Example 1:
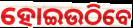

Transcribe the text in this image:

ହୋଇଉଠିବେ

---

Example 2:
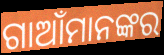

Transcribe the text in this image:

ଗାଆଁମାନଙ୍କର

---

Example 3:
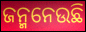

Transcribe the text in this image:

ଜନ୍ମନେଉଛି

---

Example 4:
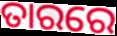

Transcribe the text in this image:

ତାରରେ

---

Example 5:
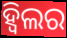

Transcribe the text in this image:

ହ୍ୱିଲର